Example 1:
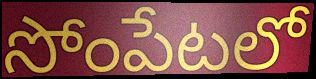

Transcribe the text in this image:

సోంపేటలో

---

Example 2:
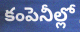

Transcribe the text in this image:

కంపెనీల్లో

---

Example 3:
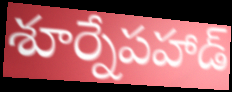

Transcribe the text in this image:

శూర్నేపహాడ్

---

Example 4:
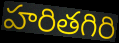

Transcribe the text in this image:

హరితగిరి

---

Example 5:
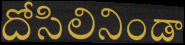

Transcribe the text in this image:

దోసిలినిండా